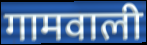
गामवाली